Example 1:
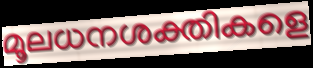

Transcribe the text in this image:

മൂലധനശക്തികളെ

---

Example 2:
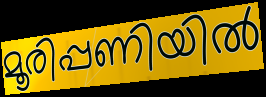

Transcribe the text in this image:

മൂരിപ്പണിയിൽ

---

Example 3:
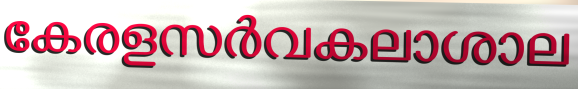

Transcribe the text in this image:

കേരളസർവകലാശാല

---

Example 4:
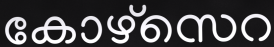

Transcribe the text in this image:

കോഴ്സെറ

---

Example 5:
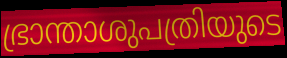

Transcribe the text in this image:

ഭ്രാന്താശുപത്രിയുടെ